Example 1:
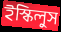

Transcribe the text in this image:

ইস্কিলুস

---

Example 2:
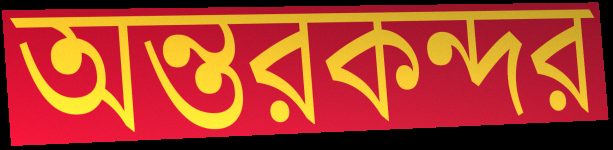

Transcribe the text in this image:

অন্তরকন্দর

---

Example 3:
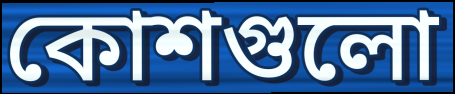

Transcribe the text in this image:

কোশগুলো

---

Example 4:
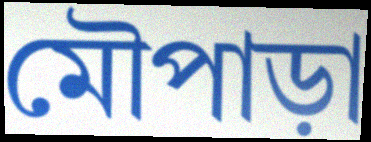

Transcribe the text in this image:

মৌপাড়া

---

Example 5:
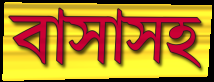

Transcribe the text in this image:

বাসাসহ